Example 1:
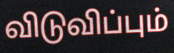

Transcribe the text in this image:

விடுவிப்பும்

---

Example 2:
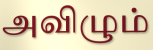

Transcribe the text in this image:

அவிழும்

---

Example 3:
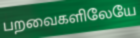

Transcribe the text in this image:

பறவைகளிலேயே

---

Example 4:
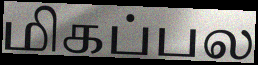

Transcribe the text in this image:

மிகப்பல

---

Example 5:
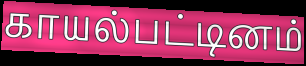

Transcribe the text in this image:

காயல்பட்டினம்